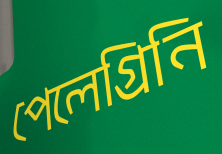
পেলেগ্রিনি